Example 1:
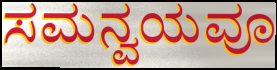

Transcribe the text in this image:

ಸಮನ್ವಯವೂ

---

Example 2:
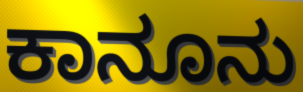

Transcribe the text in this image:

ಕಾನೂನು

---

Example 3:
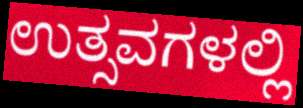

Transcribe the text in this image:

ಉತ್ಸವಗಳಲ್ಲಿ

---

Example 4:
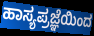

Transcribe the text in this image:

ಹಾಸ್ಯಪ್ರಜ್ಞೆಯಿಂದ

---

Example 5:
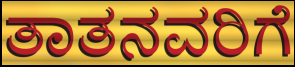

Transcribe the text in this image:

ತಾತನವರಿಗೆ